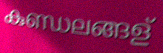
കുണ്ഡലങ്ങള്